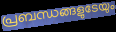
പ്രബന്ധങ്ങളുടേയും